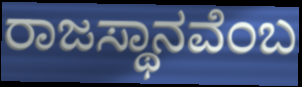
ರಾಜಸ್ಥಾನವೆಂಬ